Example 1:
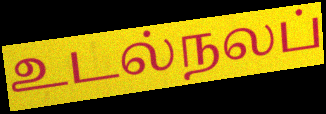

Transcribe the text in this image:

உடல்நலப்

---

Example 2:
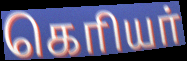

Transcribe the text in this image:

கெரியர்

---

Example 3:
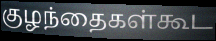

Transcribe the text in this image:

குழந்தைகள்கூட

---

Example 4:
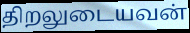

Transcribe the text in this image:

திறலுடையவன்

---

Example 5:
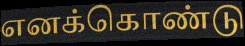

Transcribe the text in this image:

எனக்கொண்டு